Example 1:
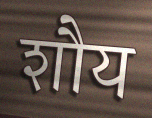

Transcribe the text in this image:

शौय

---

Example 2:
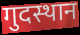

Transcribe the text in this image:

गुदस्थान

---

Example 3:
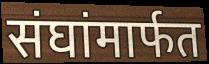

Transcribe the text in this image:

संघांमार्फत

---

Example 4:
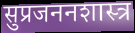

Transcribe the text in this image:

सुप्रजननशास्त्र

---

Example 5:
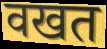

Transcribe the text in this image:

वखत